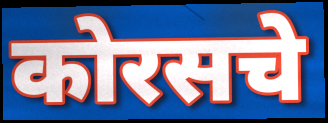
कोरसचे